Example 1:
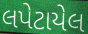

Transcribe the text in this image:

લપેટાયેલ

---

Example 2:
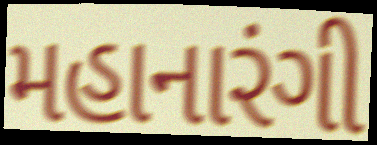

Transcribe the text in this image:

મહાનારંગી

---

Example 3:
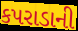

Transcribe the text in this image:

કપરાડાની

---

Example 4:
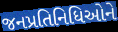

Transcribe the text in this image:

જનપ્રતિનિધિઓને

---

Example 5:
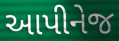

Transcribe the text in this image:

આપીનેજ